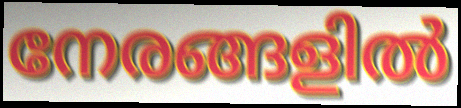
നേരങ്ങളിൽ